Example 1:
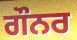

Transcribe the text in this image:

ਗੌਨਰ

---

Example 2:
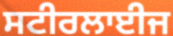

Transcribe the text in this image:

ਸਟੀਰਲਾਈਜ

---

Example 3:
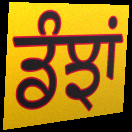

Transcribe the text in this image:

ਡੰਝਾਂ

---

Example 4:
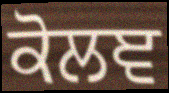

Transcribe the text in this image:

ਕੋਲਞ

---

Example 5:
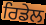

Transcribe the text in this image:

ਰਿਡੇਲ